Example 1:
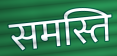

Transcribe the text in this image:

समस्ति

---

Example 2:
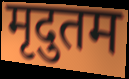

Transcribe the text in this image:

मृदुतम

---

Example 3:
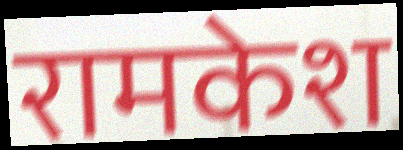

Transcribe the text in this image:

रामकेश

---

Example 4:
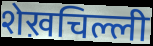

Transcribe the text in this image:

शेख़चिल्ली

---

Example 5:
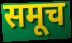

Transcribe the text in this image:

समूच